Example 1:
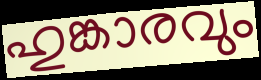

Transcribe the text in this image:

ഹുങ്കാരവും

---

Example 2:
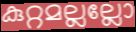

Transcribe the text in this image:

കുറ്റമല്ലല്ലോ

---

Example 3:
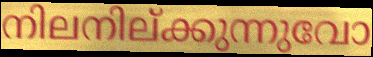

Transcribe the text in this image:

നിലനില്ക്കുന്നുവോ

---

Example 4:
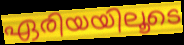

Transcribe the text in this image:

ഏരിയയിലൂടെ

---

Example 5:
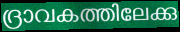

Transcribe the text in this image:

ദ്രാവകത്തിലേക്കു